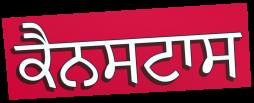
ਕੈਨਸਟਾਸ